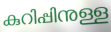
കുറിപ്പിനുള്ള